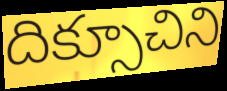
దిక్సూచిని